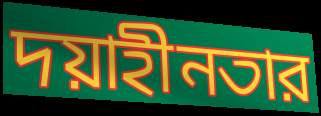
দয়াহীনতার